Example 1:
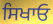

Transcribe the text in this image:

ਸਿਖਾਓ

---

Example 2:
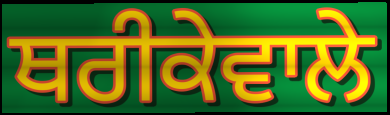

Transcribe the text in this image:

ਥਰੀਕੇਵਾਲੇ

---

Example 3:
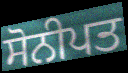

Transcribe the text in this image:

ਸੋਨੀਪਤ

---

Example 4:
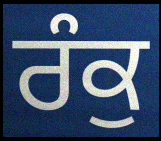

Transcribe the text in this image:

ਰੰਕੁ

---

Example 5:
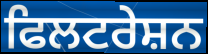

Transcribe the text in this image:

ਫਿਲਟਰੇਸ਼ਨ